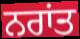
ਨਰਾਂਤ